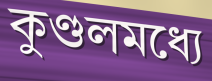
কুণ্ডলমধ্যে